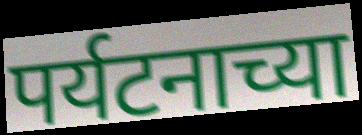
पर्यटनाच्या